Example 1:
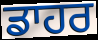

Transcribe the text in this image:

ਡਾਹਰ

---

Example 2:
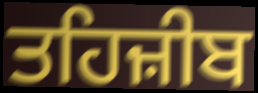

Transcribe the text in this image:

ਤਹਿਜ਼ੀਬ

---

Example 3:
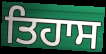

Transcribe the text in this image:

ਤਿਹਾਸ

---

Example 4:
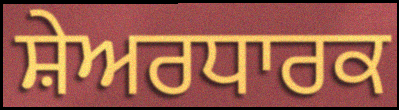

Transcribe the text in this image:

ਸ਼ੇਅਰਧਾਰਕ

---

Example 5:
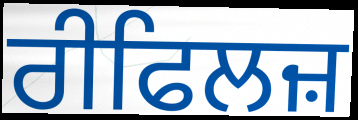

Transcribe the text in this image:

ਰੀਫਿਲਜ਼